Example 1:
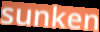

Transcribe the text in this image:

sunken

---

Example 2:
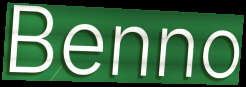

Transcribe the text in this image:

Benno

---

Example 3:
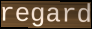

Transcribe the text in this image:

regard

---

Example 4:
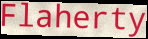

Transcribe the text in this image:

Flaherty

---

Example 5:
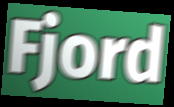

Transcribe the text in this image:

Fjord